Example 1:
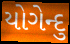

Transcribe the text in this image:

યોગેન્દુ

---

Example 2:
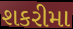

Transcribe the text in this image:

શકરીમા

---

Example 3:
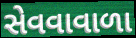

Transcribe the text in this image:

સેવવાવાળા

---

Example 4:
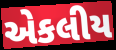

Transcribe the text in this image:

એકલીય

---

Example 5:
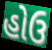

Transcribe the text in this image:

હોઉ